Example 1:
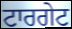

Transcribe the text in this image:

ਟਾਰਗੇਟ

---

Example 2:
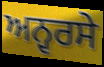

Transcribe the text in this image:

ਅਨ੍ਦਰਸੇ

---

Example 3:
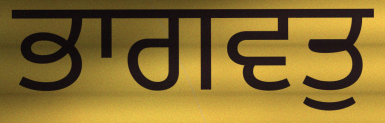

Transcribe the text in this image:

ਭਾਗਵਤੁ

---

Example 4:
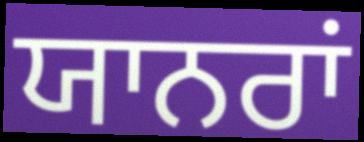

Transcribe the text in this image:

ਯਾਨਰਾਂ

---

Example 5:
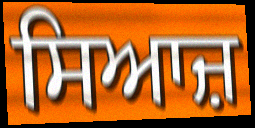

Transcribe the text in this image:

ਸਿਆਜ਼